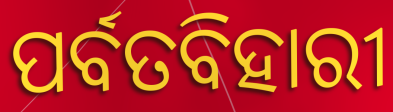
ପର୍ବତବିହାରୀ